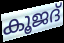
കൂജദ്